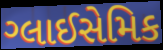
ગ્લાઈસેમિક